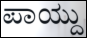
ಪಾಯ್ದು